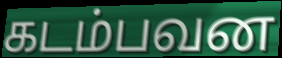
கடம்பவன